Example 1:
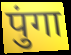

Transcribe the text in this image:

पुंगा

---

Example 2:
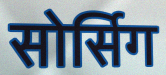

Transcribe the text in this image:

सोर्सिग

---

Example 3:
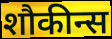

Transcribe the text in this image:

शौकीन्स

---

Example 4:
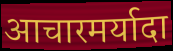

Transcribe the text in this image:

आचारमर्यादा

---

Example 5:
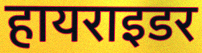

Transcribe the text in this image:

हायराइडर